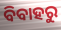
ବିବାହରୁ